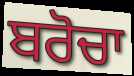
ਬਰੋਚਾ